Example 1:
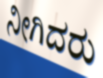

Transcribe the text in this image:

ನೀಗಿದರು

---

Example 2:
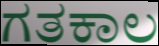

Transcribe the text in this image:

ಗತಕಾಲ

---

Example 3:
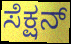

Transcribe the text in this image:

ಸೆಕ್ಷನ್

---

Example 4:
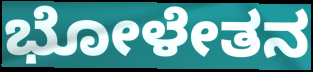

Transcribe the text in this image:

ಭೋಳೇತನ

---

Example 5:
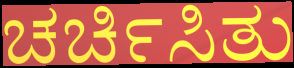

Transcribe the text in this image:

ಚರ್ಚಿಸಿತು